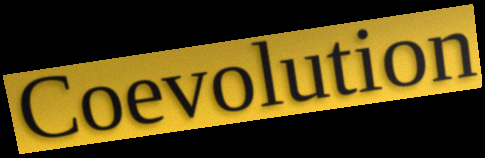
Coevolution